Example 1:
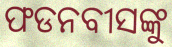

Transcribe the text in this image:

ଫଡନବୀସଙ୍କୁ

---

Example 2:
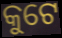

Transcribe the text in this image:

କୁଟେ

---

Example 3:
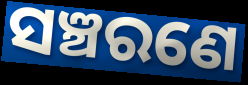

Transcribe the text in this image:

ସଞ୍ଚରଣେ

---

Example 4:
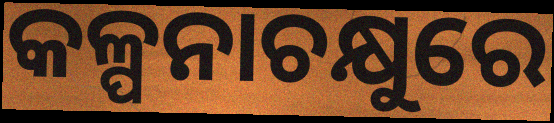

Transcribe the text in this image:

କଳ୍ପନାଚକ୍ଷୁରେ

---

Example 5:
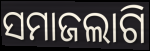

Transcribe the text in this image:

ସମାଜଲାଗି